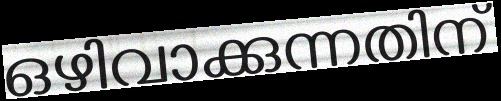
ഒഴിവാക്കുന്നതിന്